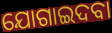
ଯୋଗାଇଦବା